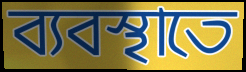
ব্যবস্থাতে